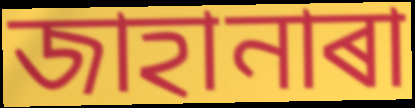
জাহানাৰা